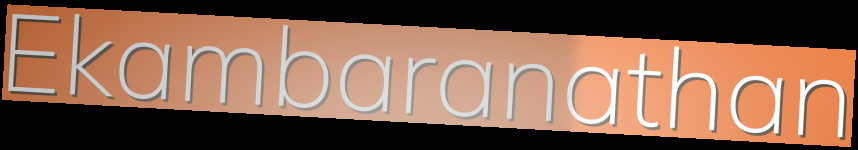
Ekambaranathan